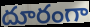
దూరంగా